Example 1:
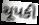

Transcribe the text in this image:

ચૂપકી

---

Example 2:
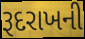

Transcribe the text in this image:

રૂદરાખની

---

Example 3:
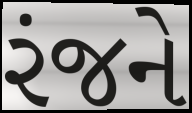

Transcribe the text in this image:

રંજને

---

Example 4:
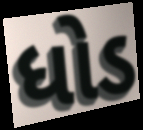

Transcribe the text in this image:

ધોડ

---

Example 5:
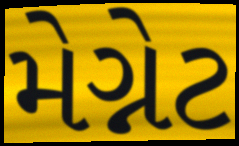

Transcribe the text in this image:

મેગ્નેટ